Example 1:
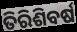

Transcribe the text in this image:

ତିରିଶିବର୍ଷ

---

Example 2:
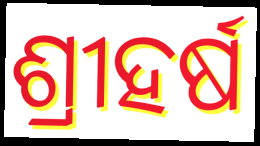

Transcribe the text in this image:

ଶ୍ରୀହର୍ଷ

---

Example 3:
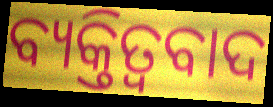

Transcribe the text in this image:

ବ୍ଯକ୍ତିତ୍ଵବାଦ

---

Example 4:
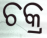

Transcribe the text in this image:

ଚକ୍ର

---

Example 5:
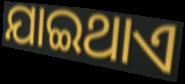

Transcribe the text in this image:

ଯାଇଥାଏ